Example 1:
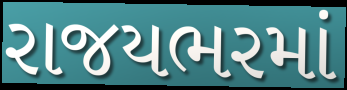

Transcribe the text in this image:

રાજયભરમાં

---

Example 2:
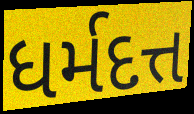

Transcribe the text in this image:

ધર્મદત્ત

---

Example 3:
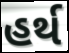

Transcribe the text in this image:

હર્થ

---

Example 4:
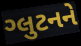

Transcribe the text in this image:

ગ્લુટનને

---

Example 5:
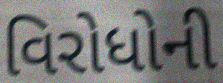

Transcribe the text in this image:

વિરોધોની